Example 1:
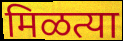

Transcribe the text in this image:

मिळत्या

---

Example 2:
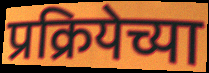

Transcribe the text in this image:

प्रक्रियेच्या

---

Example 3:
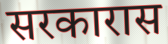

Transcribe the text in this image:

सरकारास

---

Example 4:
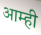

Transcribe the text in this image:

आम्‍ही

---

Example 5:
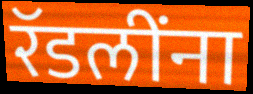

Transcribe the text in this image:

रॅडलींना